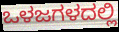
ಒಳಜಗಳದಲ್ಲಿ